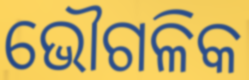
ଭୌଗଳିକ